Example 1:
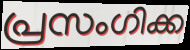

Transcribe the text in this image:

പ്രസംഗിക്ക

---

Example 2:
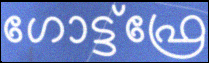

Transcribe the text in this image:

ഗോട്ട്ഫ്രേ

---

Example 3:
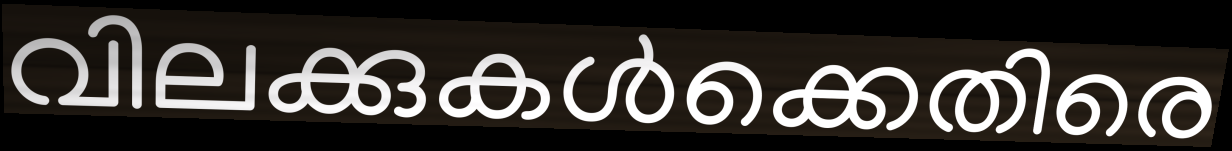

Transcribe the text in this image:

വിലക്കുകൾക്കെതിരെ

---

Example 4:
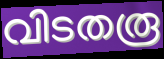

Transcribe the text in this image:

വിടതരൂ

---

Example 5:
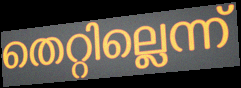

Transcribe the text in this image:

തെറ്റില്ലെന്ന്